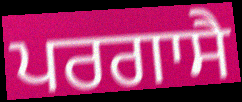
ਪਰਗਾਸੈ